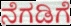
ನೆಗಡಿಗೆ